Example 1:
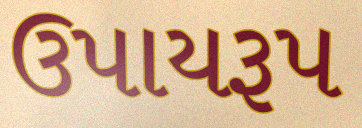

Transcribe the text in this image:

ઉપાયરૂપ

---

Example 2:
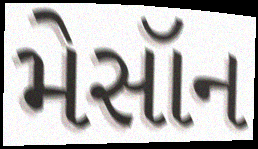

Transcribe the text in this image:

મેસૉન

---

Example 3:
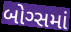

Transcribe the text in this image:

બોગ્સમાં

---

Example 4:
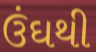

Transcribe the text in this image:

ઉંઘથી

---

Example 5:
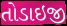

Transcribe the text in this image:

તોડાઇજી